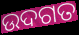
ଉଦଗତ